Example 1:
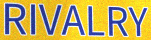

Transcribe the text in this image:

RIVALRY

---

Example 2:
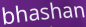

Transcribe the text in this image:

bhashan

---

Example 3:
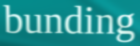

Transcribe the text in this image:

bunding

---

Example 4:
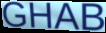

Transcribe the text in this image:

GHAB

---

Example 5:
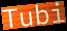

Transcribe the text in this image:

Tubi